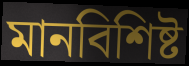
মানবিশিষ্ট